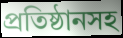
প্রতিষ্ঠানসহ